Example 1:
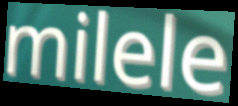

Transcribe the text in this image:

milele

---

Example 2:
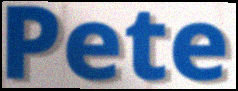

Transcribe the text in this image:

Pete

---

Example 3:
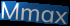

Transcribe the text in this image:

Mmax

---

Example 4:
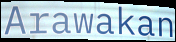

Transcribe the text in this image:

Arawakan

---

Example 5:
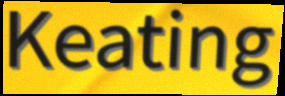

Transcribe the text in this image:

Keating